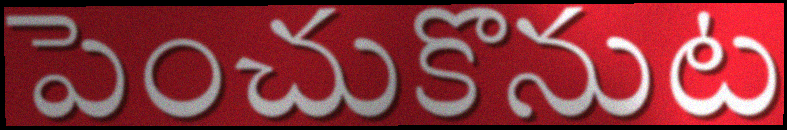
పెంచుకొనుట